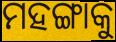
ମହଙ୍ଗାକୁ